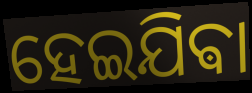
ହେଇଯିଵା